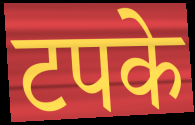
टपके